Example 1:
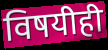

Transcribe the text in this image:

विषयीही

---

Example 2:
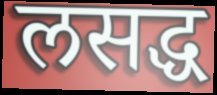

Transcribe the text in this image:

लसद्ध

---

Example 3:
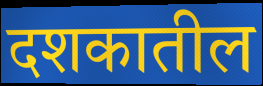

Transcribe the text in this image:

दशकातील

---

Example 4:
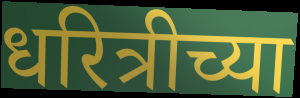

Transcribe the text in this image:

धरित्रीच्या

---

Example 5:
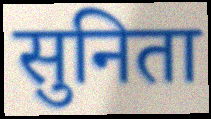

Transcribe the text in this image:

सुनिता